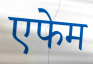
एफेम